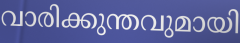
വാരിക്കുന്തവുമായി